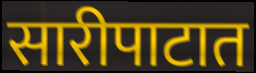
सारीपाटात